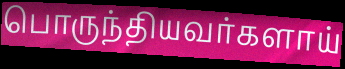
பொருந்தியவர்களாய்